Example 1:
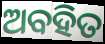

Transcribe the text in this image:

ଅବହିତ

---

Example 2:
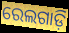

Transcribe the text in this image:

ରେଲଗାଡ଼ି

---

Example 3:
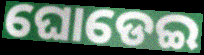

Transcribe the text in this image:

ଘୋଡେଇ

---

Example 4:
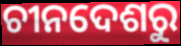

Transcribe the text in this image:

ଚୀନଦେଶରୁ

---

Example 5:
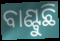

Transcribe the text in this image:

ବାଣ୍ଟୁଛି